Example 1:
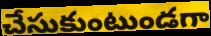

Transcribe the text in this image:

చేసుకుంటుండగా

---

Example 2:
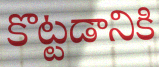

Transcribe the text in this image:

కొట్టడానికి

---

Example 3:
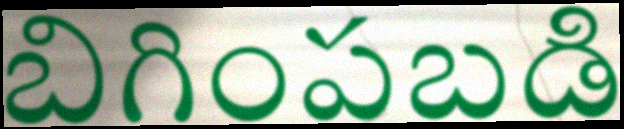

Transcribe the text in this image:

బిగింపబడి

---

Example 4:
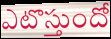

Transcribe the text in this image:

ఎటొస్తుందో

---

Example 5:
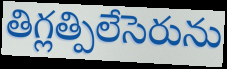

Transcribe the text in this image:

తిగ్లత్పిలేసెరును